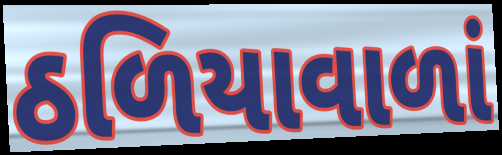
ઠળિયાવાળાં